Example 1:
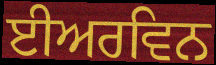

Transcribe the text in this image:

ਈਅਰਵਿਨ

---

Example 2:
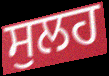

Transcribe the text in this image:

ਸੁਲਹ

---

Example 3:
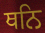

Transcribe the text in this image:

ਥਨਿ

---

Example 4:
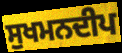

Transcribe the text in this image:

ਸੁਖਮਨਦੀਪ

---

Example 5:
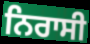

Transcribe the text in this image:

ਨਿਰਾਸੀ